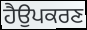
ਹੈਉਪਕਰਣ